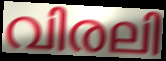
വിരലി